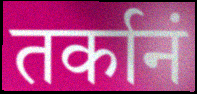
तर्कानं